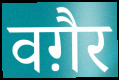
वग़ैर